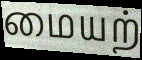
மையற்